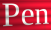
Pen